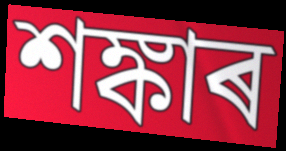
শঙ্কাৰ